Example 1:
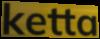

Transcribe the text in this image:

ketta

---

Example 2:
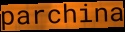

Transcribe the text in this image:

parchina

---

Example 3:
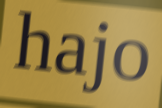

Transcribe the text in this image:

hajo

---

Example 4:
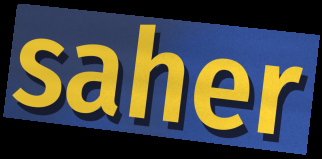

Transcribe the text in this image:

saher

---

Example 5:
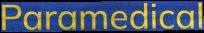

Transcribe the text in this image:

Paramedical